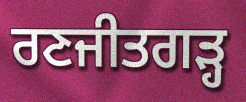
ਰਣਜੀਤਗੜ੍ਹ